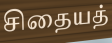
சிதையத்